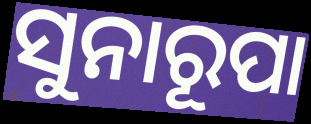
ସୁନାରୂପା